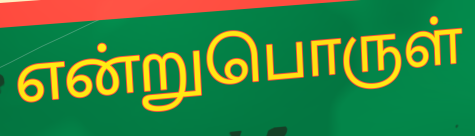
என்றுபொருள்